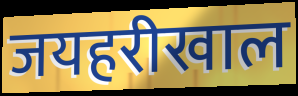
जयहरीखाल